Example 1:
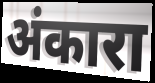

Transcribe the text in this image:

अंकारा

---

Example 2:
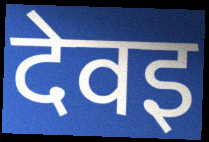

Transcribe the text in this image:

देवइ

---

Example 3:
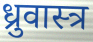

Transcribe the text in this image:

ध्रुवास्त्र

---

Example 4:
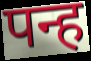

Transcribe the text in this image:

पन्ह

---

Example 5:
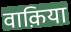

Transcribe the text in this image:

वाक़िया